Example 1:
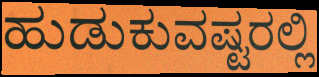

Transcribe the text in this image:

ಹುಡುಕುವಷ್ಟರಲ್ಲಿ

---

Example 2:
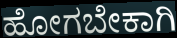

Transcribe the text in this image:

ಹೋಗಬೇಕಾಗಿ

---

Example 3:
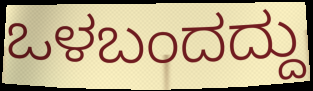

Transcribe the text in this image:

ಒಳಬಂದದ್ದು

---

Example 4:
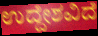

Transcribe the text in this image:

ಉದ್ದೇಶವಿದೆ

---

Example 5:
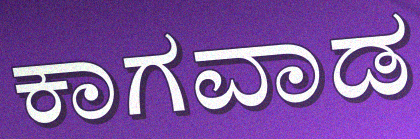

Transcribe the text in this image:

ಕಾಗವಾಡ